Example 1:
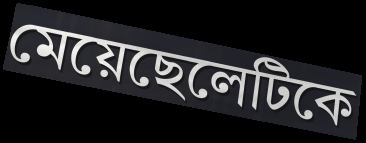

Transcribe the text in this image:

মেয়েছেলেটিকে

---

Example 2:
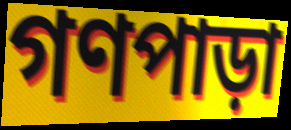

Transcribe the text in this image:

গণপাড়া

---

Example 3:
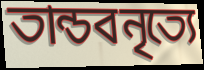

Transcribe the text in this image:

তান্ডবনৃত্যে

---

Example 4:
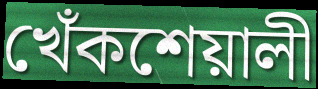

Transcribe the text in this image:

খেঁকশেয়ালী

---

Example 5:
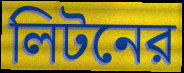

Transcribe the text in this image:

লিটনের